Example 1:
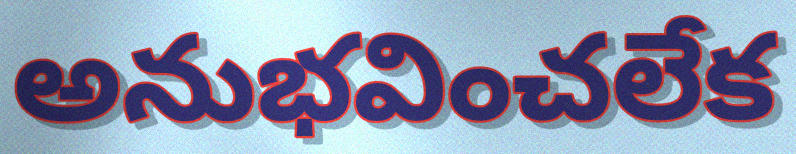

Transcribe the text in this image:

అనుభవించలేక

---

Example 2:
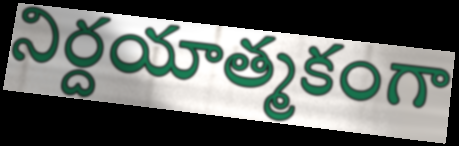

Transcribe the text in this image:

నిర్దయాత్మకంగా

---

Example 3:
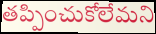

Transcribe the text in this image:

తప్పించుకోలేమని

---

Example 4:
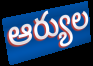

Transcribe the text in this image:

ఆర్యుల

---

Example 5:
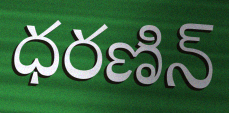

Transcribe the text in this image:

ధరణిన్